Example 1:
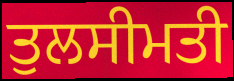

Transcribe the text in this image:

ਤੁਲਸੀਮਤੀ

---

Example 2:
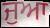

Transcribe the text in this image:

ਜੁਆ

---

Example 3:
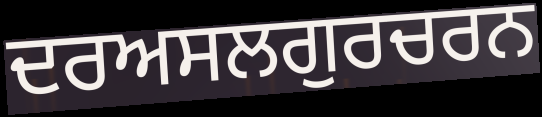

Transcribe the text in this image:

ਦਰਅਸਲਗੁਰਚਰਨ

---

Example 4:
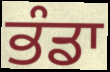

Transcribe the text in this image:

ਭੰਡਾ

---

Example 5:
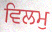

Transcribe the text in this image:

ਵਿਲਮੁ